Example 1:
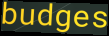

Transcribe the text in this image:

budges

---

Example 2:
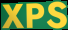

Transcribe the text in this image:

XPS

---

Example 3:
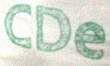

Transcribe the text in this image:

CDe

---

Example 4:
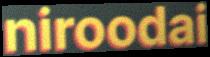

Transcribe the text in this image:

niroodai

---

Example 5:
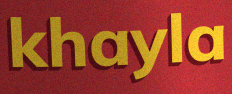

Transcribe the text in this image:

khayla